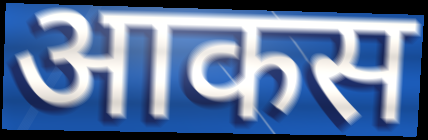
आकस